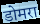
डोमरा